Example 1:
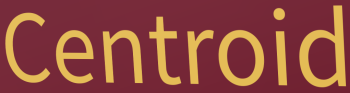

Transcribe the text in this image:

Centroid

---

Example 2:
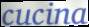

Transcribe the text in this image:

cucina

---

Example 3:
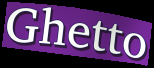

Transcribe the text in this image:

Ghetto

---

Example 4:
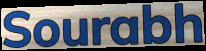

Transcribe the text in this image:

Sourabh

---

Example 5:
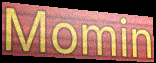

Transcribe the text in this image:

Momin